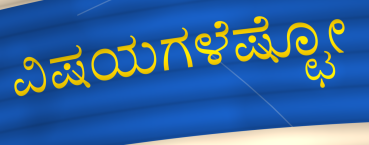
ವಿಷಯಗಳೆಷ್ಟೋ